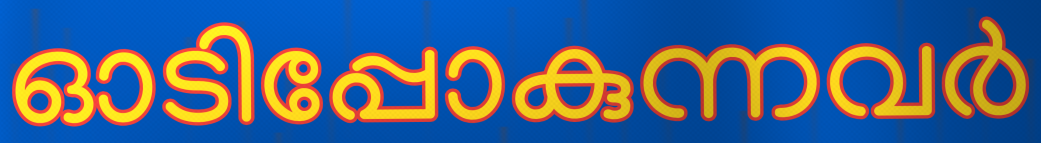
ഓടിപ്പോകുന്നവർ